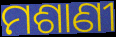
ମଶାଣୀ